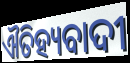
ଐତିହ୍ୟବାଦୀ